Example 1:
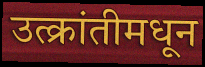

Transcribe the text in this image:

उत्क्रांतीमधून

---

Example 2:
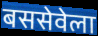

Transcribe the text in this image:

बससेवेला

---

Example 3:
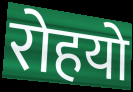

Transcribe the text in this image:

रोहयो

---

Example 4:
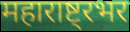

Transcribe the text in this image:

महाराष्ट्रभर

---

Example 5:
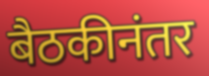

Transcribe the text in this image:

बैठकीनंतर